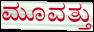
ಮೂವತ್ತು